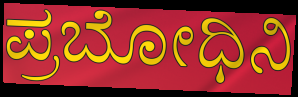
ಪ್ರಬೋಧಿನಿ